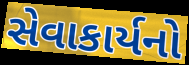
સેવાકાર્યનો